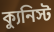
ক্যুনিস্ট